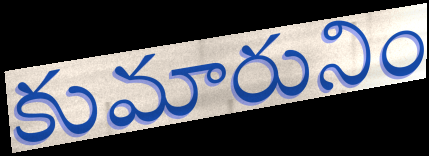
కుమారునిం